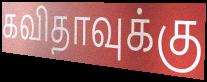
கவிதாவுக்கு